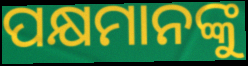
ପକ୍ଷମାନଙ୍କୁ